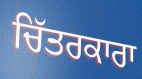
ਚਿੱਤਰਕਾਰਾ